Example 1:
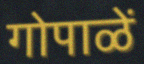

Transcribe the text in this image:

गोपाळें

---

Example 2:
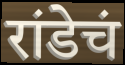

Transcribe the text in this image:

रांडेचं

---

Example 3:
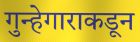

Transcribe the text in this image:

गुन्हेगाराकडून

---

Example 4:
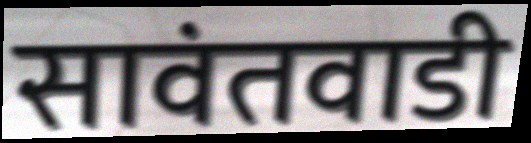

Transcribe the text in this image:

सावंतवाडी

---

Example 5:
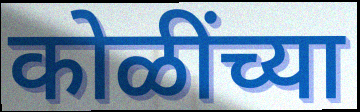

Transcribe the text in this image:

कोळींच्या